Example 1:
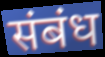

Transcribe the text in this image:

संबंध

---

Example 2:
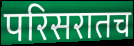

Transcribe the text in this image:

परिसरातच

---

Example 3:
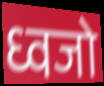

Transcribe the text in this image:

ध्वजो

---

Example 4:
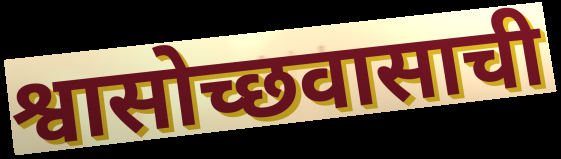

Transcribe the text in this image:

श्वासोच्छवासाची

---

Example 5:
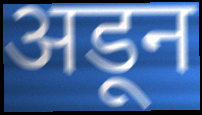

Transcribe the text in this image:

अडून